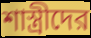
শাস্ত্রীদের